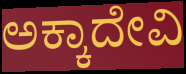
ಅಕ್ಕಾದೇವಿ